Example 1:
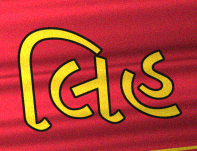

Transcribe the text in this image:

લિહ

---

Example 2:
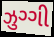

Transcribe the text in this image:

ઝુગ્ગી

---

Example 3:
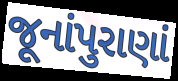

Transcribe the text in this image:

જૂનાંપુરાણાં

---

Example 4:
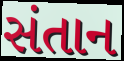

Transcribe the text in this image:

સંતાન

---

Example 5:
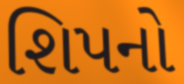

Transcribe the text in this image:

શિપનો